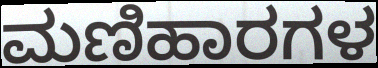
ಮಣಿಹಾರಗಳ